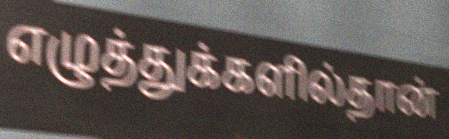
எழுத்துக்களில்தான்